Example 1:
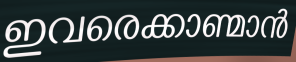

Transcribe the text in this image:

ഇവരെക്കാണ്മാൻ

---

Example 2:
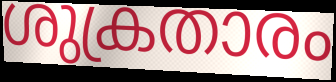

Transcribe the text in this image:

ശുക്രതാരം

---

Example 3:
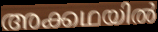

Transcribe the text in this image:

അക്കഥയിൽ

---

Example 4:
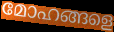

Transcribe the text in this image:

മോഹങ്ങളെ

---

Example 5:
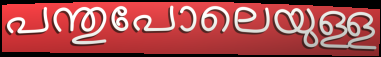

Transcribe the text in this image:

പന്തുപോലെയുള്ള